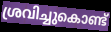
ശ്രവിച്ചുകൊണ്ട്